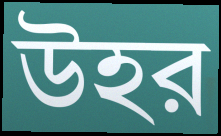
উহর